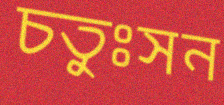
চতুঃসন